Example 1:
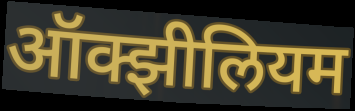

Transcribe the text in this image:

ऑक्झीलियम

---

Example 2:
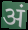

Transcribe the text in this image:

अं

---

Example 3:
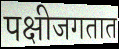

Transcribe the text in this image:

पक्षीजगतात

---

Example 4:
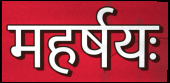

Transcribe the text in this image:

महर्षयः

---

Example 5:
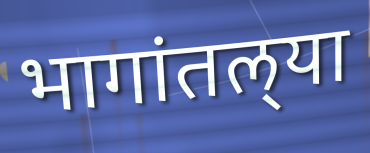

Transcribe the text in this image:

भागांतल्या